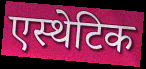
एस्थेटिक